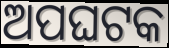
ଅପଘଟକ